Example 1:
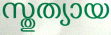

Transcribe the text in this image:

സ്തുത്യായ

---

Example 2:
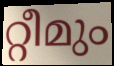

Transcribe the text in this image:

റ്റീമും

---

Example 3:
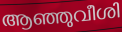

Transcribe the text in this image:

ആഞ്ഞുവീശി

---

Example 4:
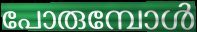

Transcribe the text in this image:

പോരുമ്പോൾ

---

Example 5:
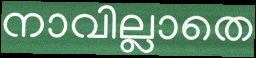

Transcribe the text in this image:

നാവില്ലാതെ